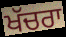
ਖੱਚਰਾ